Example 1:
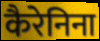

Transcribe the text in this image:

कैरेनिना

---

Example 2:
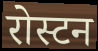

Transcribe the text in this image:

रोस्टन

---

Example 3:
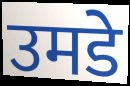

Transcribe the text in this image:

उमडे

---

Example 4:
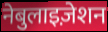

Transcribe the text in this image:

नेबुलाइज़ेशन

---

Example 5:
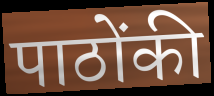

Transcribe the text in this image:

पाठोंकी